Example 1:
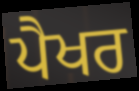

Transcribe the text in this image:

ਪੈਖਰ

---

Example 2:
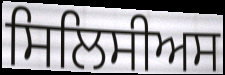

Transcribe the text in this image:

ਸਿਲਿਸੀਅਸ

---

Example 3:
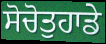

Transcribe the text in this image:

ਸੋਚੋਤੁਹਾਡੇ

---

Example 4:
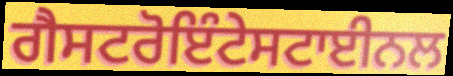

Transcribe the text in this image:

ਗੈਸਟਰੋਇੰਟੇਸਟਾਈਨਲ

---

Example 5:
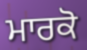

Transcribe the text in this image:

ਮਾਰਕੋ